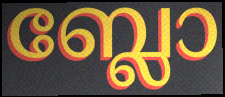
ബ്ലോ